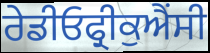
ਰੇਡੀਓਫ੍ਰੀਕੁਐਂਸੀ